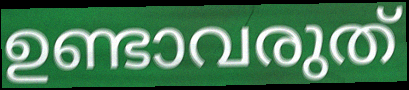
ഉണ്ടാവരുത്